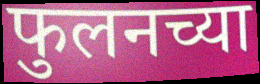
फुलनच्या